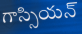
గాస్సియన్